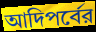
আদিপর্বের